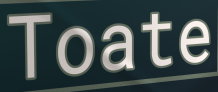
Toate